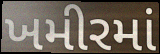
ખમીરમાં